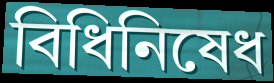
বিধিনিষেধ